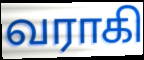
வராகி